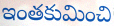
ఇంతకుమించి